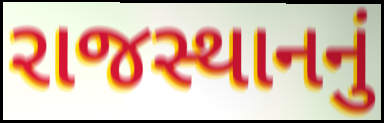
રાજસ્થાનનું